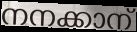
നനക്കാന്